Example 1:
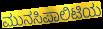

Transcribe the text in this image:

ಮುನಸಿಪಾಲಿಟಿಯ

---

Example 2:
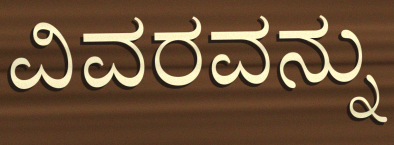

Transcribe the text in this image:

ವಿವರವನ್ನು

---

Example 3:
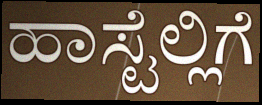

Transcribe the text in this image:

ಹಾಸ್ಟೆಲ್ಲಿಗೆ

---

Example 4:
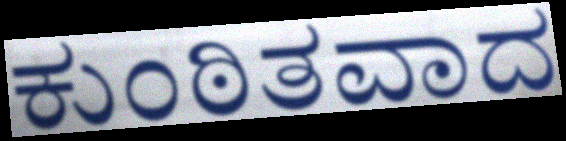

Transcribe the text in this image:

ಕುಂಠಿತವಾದ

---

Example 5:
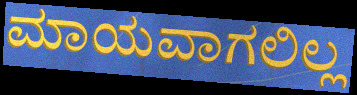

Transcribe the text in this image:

ಮಾಯವಾಗಲಿಲ್ಲ